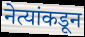
नेत्यांकडून